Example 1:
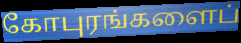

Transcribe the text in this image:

கோபுரங்களைப்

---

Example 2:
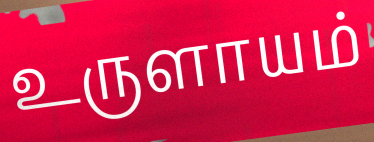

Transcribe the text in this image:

உருளாயம்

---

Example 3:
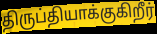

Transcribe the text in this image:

திருப்தியாக்குகிறீர்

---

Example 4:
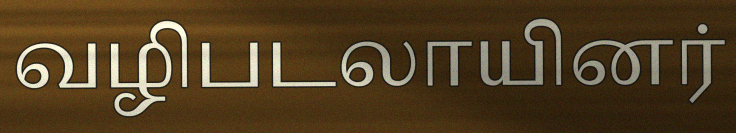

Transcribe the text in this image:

வழிபடலாயினர்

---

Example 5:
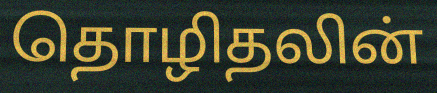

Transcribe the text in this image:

தொழிதலின்